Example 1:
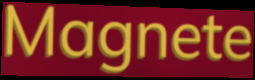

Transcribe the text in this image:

Magnete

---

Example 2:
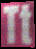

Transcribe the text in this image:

Tt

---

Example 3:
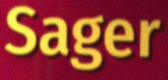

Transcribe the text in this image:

Sager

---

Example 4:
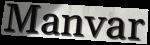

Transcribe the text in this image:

Manvar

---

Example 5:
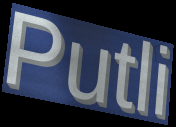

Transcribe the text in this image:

Putli